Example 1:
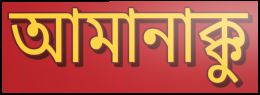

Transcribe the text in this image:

আমানাক্কু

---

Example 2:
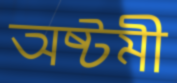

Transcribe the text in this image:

অষ্টমী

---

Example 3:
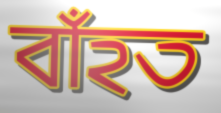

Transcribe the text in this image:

বাঁহত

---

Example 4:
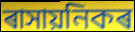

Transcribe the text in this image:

ৰাসায়নিকৰ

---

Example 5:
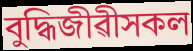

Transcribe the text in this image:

বুদ্ধিজীৱীসকল